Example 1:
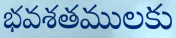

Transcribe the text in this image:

భవశతములకు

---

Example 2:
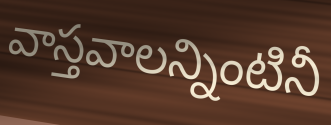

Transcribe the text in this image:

వాస్తవాలన్నింటినీ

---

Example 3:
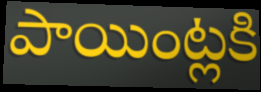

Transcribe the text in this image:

పాయింట్లకి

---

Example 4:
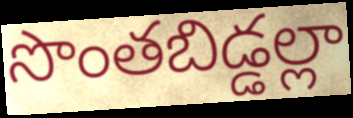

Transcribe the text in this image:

సొంతబిడ్డల్లా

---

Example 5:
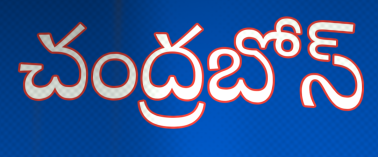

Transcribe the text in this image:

చంద్రబోస్